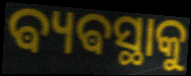
ଵ୍ୟଵସ୍ଥାକୁ